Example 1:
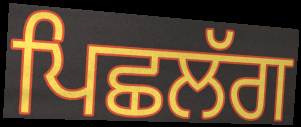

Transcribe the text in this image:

ਪਿਛਲੱਗ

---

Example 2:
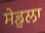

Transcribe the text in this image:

ਸੇਡੁਲਾ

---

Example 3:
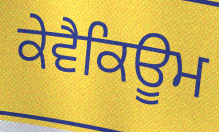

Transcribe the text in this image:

ਕੇਵੈਕਿਊਮ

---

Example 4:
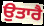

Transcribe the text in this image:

ਉਤਾਰੈ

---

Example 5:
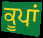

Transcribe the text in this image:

ਕੂਪਾਂ